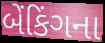
બેંકિંગના